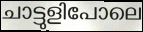
ചാട്ടുളിപോലെ